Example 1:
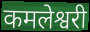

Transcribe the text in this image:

कमलेश्वरी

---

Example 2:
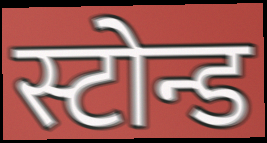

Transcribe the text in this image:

स्टोन्ड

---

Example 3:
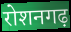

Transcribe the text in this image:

रोशनगढ़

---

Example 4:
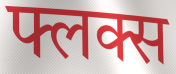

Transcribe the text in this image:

फ्लक्स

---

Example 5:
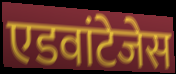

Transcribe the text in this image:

एडवांटेजेस